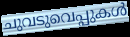
ചുവടുവെപ്പുകൾ